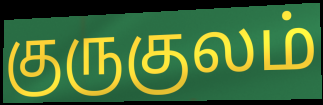
குருகுலம்